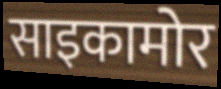
साइकामोर